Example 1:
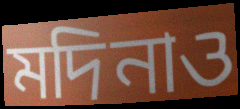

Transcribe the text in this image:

মদিনাও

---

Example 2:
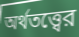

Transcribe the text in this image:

অর্থতত্ত্বের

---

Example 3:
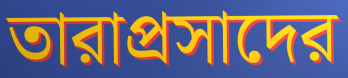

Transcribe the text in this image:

তারাপ্রসাদের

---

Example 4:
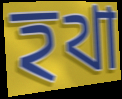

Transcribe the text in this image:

হথা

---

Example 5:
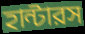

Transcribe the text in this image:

হান্টারস